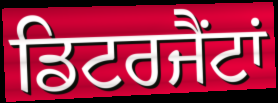
ਡਿਟਰਜੈਂਟਾਂ